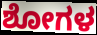
ಶೋಗಳ